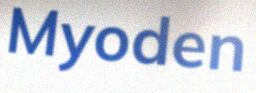
Myoden